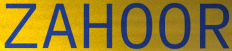
ZAHOOR